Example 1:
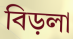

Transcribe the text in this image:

বিড়লা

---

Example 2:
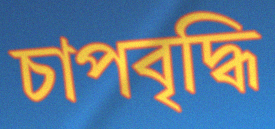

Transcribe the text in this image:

চাপবৃদ্ধি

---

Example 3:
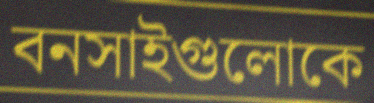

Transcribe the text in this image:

বনসাইগুলোকে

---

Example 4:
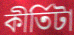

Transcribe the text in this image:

কীর্তিটা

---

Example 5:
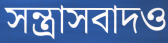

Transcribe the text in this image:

সন্ত্রাসবাদও